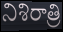
నిశిరాత్రి